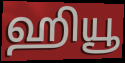
ஹியூ